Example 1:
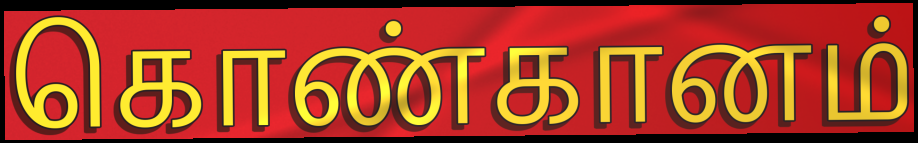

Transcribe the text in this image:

கொண்கானம்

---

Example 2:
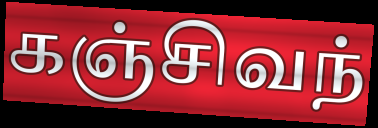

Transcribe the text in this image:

கஞ்சிவந்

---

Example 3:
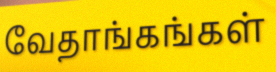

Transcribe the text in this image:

வேதாங்கங்கள்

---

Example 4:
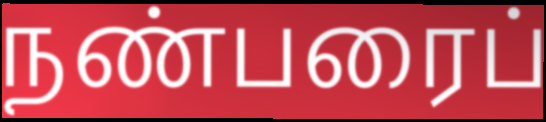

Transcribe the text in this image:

நண்பரைப்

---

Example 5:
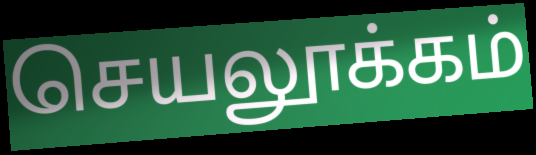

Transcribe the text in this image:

செயலூக்கம்